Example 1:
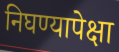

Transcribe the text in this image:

निघण्यापेक्षा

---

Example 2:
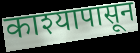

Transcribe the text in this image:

काश्यापासून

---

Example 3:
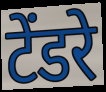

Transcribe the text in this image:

टेंडरे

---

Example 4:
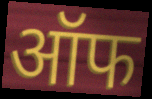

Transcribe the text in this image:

ऑफ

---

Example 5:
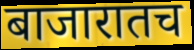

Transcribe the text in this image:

बाजारातच